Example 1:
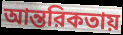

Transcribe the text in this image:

আন্তরিকতায়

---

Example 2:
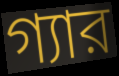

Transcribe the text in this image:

গ্যার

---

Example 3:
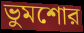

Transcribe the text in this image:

ভুমশোর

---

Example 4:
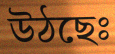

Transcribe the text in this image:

উঠছেঃ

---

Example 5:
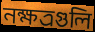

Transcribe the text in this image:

নক্ষত্রগুলি